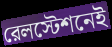
রেলস্টেশনেই